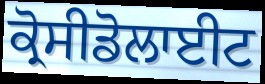
ਕ੍ਰੋਸੀਡੋਲਾਈਟ